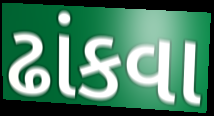
ઢાંકવા